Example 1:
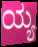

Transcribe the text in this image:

ಯ್ಯ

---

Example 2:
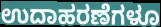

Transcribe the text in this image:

ಉದಾಹರಣೆಗಳೂ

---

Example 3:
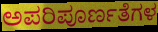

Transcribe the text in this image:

ಅಪರಿಪೂರ್ಣತೆಗಳ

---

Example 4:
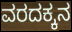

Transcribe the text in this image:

ವರದಕ್ಕನ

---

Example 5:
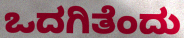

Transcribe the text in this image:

ಒದಗಿತೆಂದು